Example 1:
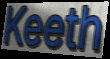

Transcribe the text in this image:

Keeth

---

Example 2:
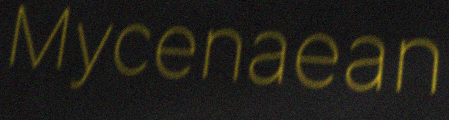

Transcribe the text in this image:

Mycenaean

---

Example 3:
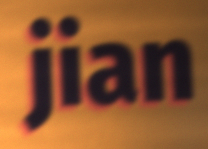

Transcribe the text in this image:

jian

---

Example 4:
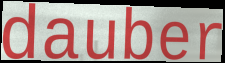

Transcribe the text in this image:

dauber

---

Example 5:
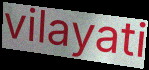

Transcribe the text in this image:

vilayati